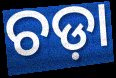
ଚଡ଼ା